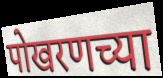
पोखरणच्या